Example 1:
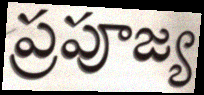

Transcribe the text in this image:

ప్రపూజ్య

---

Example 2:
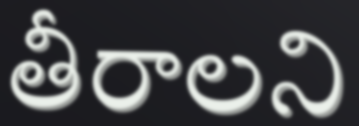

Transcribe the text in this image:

తీరాలని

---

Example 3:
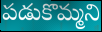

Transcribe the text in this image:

పడుకొమ్మని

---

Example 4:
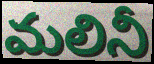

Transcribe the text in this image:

మలినీ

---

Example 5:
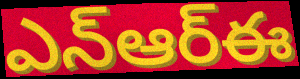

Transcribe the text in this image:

ఎన్ఆర్ఈ